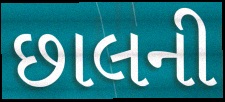
છાલની